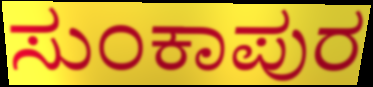
ಸುಂಕಾಪುರ